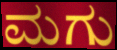
ಮಗು